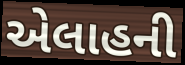
એલાહની